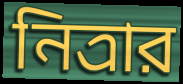
নিত্রার